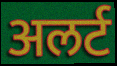
अलर्ट